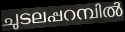
ചുടലപ്പറമ്പിൽ